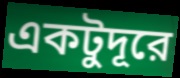
একটুদূরে